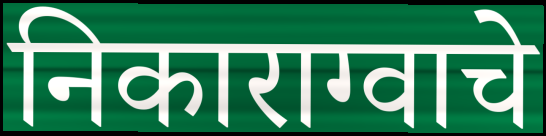
निकाराग्वाचे